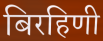
बिरहिणी